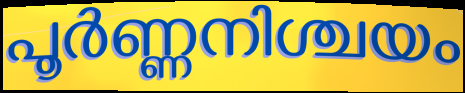
പൂർണ്ണനിശ്ചയം